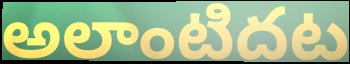
అలాంటిదట